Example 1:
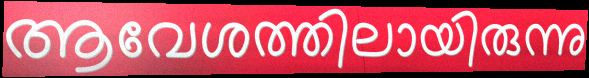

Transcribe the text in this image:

ആവേശത്തിലായിരുന്നു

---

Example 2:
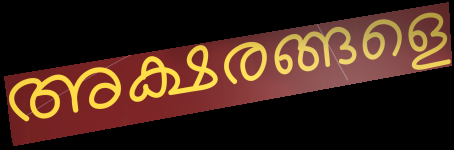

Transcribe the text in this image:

അക്ഷരങ്ങളെ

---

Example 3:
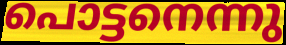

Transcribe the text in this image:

പൊട്ടനെന്നു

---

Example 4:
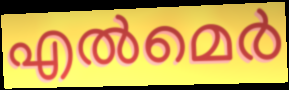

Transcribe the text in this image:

എൽമെർ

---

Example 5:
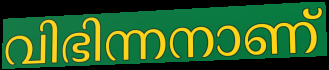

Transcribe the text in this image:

വിഭിന്നനാണ്